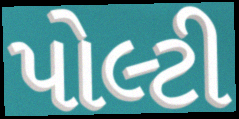
પોલ્ટી